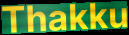
Thakku